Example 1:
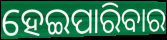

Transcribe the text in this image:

ହେଇପାରିବାର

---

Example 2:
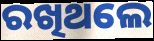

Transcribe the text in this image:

ରଖିଥଲେ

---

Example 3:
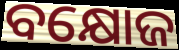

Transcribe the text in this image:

ବକ୍ଷୋଜ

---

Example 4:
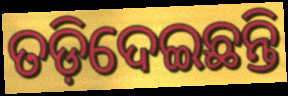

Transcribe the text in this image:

ତଡ଼ିଦେଇଛନ୍ତି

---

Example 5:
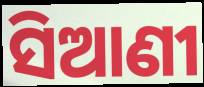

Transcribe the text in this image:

ସିଆଣୀ